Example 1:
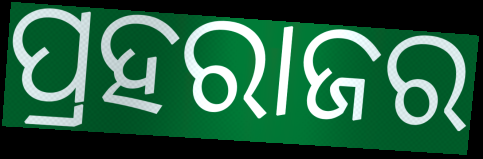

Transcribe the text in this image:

ପ୍ରହରାଜର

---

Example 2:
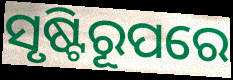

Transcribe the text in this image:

ସୃଷ୍ଟିରୂପରେ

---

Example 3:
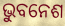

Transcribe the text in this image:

ଭୁବନେଶ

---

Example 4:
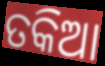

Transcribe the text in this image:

ତକିଆ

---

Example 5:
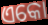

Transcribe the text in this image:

ଏକୋ